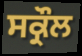
ਸਕ੍ਰੌਲ